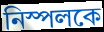
নিস্পলকে